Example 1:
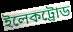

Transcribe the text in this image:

ইলেকট্রোড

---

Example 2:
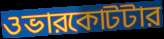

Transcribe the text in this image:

ওভারকোটটার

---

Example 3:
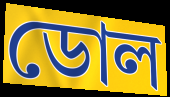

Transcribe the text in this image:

ডোল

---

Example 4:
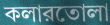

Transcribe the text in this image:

কলারতোলা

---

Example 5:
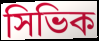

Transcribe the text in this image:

সিভিক